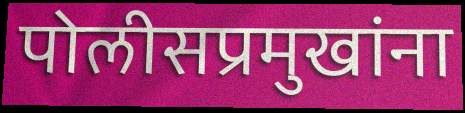
पोलीसप्रमुखांना